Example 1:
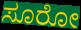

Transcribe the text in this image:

ಸೂರೋ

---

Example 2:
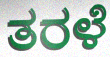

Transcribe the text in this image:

ತರಳೆ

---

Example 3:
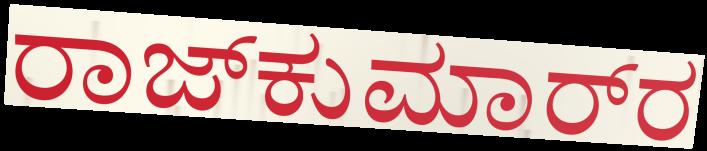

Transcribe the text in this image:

ರಾಜ್‌ಕುಮಾರ್‌ರ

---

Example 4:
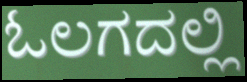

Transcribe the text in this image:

ಓಲಗದಲ್ಲಿ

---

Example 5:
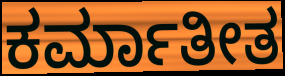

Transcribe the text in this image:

ಕರ್ಮಾತೀತ